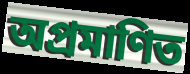
অপ্ৰমাণিত